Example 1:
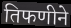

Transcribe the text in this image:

तिफणीने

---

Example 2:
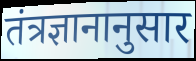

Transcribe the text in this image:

तंत्रज्ञानानुसार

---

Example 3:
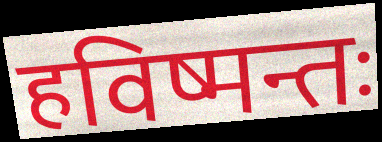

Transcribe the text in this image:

हविष्मन्तः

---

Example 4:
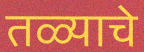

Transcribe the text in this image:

तळ्याचे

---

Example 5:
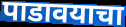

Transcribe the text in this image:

पाडावयाचा